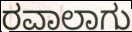
ರವಾಲಾಗು